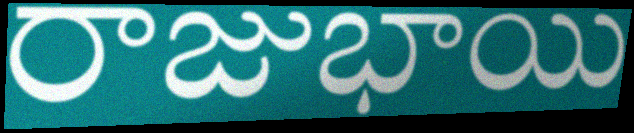
రాజుభాయి